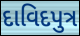
દાવિદપુત્ર